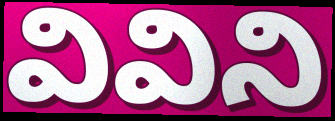
వివిని